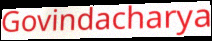
Govindacharya